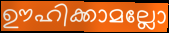
ഊഹിക്കാമല്ലോ